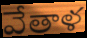
వేతాళ